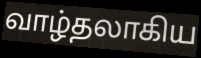
வாழ்தலாகிய